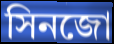
সিনজো